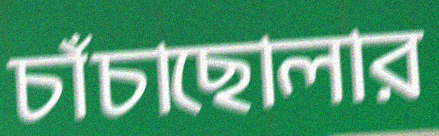
চাঁচাছোলার